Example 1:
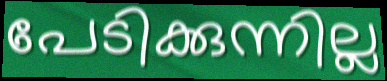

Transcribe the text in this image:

പേടിക്കുന്നില്ല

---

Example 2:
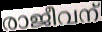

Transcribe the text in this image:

രാജീവന്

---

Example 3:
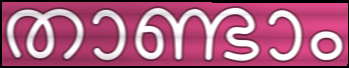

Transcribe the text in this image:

താണ്ടാം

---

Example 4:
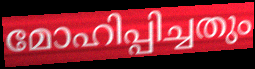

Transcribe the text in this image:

മോഹിപ്പിച്ചതും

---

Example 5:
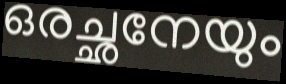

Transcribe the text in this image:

ഒരച്ഛനേയും